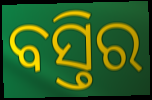
ବସ୍ତିର